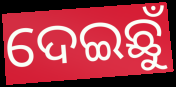
ଦେଇଛୁଁ